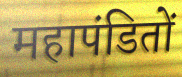
महापंडितों